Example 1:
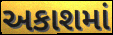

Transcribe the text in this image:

અકાશમાં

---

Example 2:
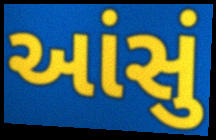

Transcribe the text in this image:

આંસું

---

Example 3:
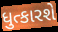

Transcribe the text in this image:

ધુત્કારશે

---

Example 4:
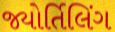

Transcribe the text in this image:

જ્યોર્તિલિંગ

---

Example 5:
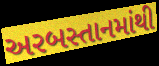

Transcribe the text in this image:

અરબસ્તાનમાંથી